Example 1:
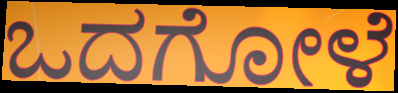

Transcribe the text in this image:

ಒದಗೋಳೆ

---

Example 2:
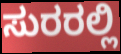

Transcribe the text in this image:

ಸುರರಲ್ಲಿ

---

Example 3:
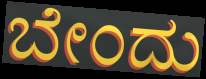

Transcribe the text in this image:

ಬೇಂದು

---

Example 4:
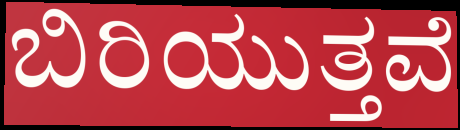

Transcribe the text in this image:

ಬಿರಿಯುತ್ತವೆ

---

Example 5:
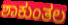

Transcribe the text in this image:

ಶಾಕುಂತಲ